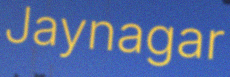
Jaynagar